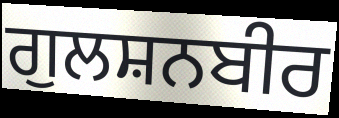
ਗੁਲਸ਼ਨਬੀਰ